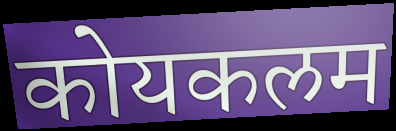
कोयकलम